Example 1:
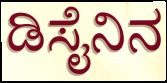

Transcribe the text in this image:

ಡಿಸೈನಿನ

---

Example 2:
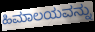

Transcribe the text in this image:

ಹಿಮಾಲಯವನ್ನು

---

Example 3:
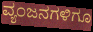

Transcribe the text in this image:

ವ್ಯಂಜನಗಳಿಗೂ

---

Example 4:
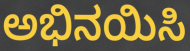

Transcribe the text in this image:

ಅಭಿನಯಿಸಿ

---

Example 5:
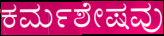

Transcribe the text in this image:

ಕರ್ಮಶೇಷವು